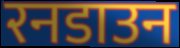
रनडाउन